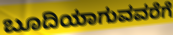
ಬೂದಿಯಾಗುವವರೆಗೆ